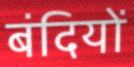
बंदियों